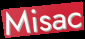
Misac